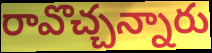
రావొచ్చన్నారు